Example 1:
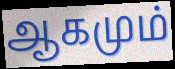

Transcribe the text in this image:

ஆகமும்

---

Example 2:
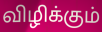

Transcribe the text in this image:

விழிக்கும்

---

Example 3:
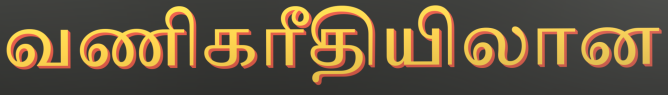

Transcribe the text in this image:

வணிகரீதியிலான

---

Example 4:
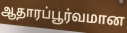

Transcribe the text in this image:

ஆதாரப்பூர்வமான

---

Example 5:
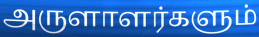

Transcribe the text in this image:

அருளாளர்களும்